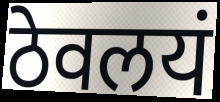
ठेवलयं